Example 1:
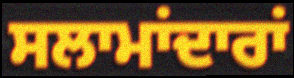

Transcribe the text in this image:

ਸਲਾਮਾਂਦਾਰਾਂ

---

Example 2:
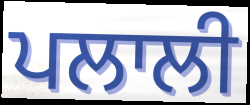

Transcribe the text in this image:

ਪਲਾਲੀ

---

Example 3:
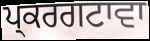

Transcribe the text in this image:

ਪ੍ਕਰਗਟਾਵਾ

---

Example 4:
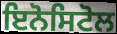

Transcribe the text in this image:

ਇਨੋਸਿਟੋਲ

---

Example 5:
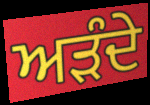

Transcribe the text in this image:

ਅੜੰਦੇ